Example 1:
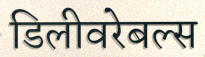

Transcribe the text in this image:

डिलीवरेबल्स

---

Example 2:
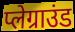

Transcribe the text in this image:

प्लेग्राउंड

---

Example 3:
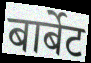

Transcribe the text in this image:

बार्बेट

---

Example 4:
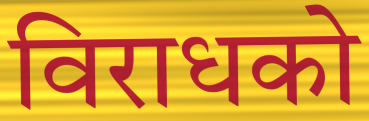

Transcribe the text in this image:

विराधको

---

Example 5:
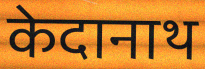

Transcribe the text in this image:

केदानाथ